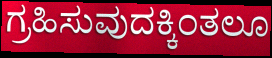
ಗ್ರಹಿಸುವುದಕ್ಕಿಂತಲೂ